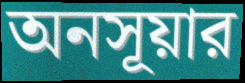
অনসূয়ার